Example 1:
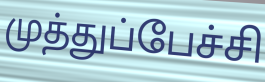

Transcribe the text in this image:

முத்துப்பேச்சி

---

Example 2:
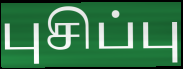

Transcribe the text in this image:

புசிப்பு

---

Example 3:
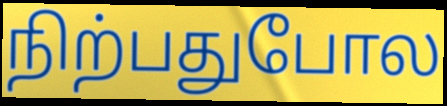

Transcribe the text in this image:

நிற்பதுபோல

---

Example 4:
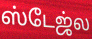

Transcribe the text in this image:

ஸ்டேஜ்ல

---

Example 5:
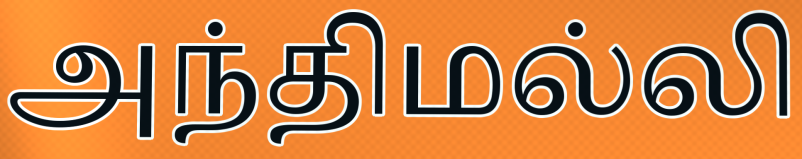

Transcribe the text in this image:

அந்திமல்லி